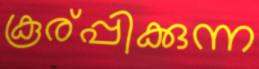
കൂര്പ്പിക്കുന്ന